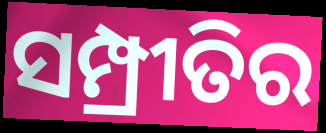
ସମ୍ପ୍ରୀତିର